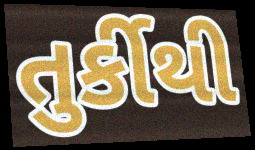
તુર્કીથી